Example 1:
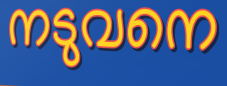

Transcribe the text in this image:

നടുവനെ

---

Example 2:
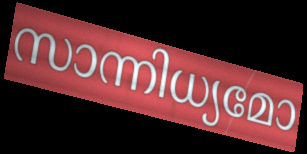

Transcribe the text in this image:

സാന്നിധ്യമോ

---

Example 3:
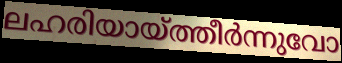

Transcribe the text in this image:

ലഹരിയായ്ത്തീർന്നുവോ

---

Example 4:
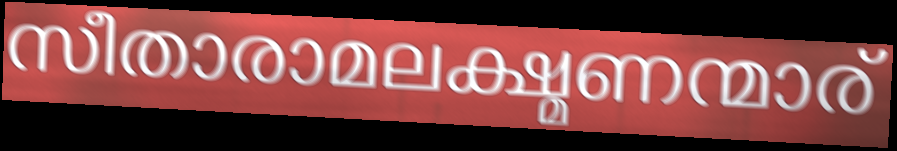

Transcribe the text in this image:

സീതാരാമലക്ഷ്മണന്മാര്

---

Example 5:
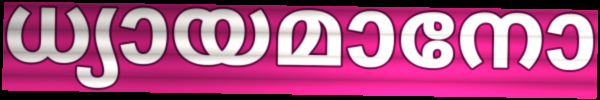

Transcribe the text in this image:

ധ്യായമാനോ